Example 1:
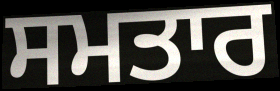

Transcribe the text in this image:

ਸਮਤਾਰ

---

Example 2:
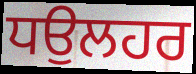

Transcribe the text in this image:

ਧਉਲਹਰ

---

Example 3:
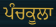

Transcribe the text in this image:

ਪੰਚਕੂਲਾ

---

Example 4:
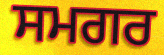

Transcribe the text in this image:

ਸਮਗਰ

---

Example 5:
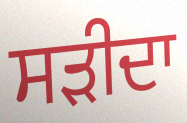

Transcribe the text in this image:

ਸੜੀਦਾ